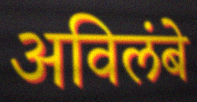
अविलंबे